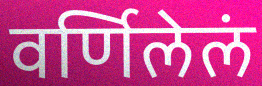
वर्णिलेलं